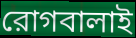
রোগবালাই